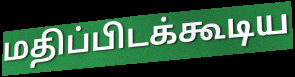
மதிப்பிடக்கூடிய